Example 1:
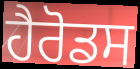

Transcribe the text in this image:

ਹੈਰੋਡਸ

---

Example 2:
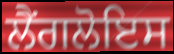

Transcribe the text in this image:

ਲੈਂਗਲੋਇਸ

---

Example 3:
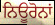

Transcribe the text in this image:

ਨਿਊਰੋਨਾਂ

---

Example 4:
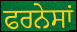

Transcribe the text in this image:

ਫਰਨੇਸਾਂ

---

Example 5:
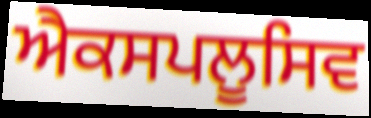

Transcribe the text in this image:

ਐਕਸਪਲੂਸਿਵ